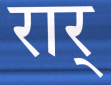
रार्